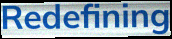
Redefining